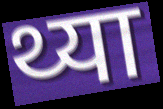
थ्या